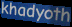
khadyoth